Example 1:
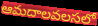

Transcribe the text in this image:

ఆమదాలవలసలో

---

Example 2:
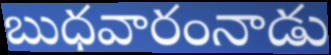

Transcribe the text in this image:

బుధవారంనాడు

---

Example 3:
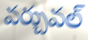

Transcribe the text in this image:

వర్చువల్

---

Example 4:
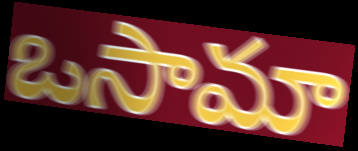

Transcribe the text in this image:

ఒసామా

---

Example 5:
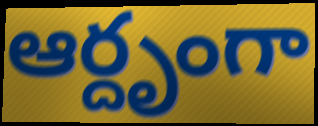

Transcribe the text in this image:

ఆర్దృంగా